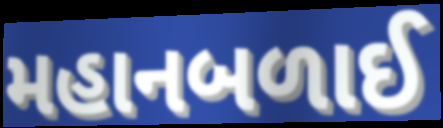
મહાનબળાઈ